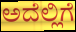
ಅದೆಲ್ಲಿಗೆ